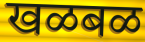
खळबळ